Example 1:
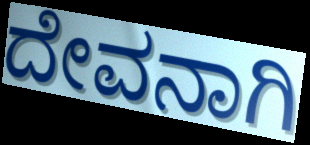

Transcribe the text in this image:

ದೇವನಾಗಿ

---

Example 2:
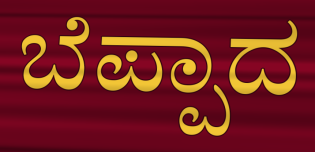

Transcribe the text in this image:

ಬೆಪ್ಪಾದ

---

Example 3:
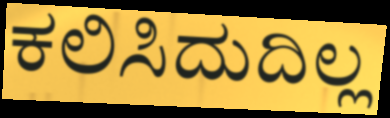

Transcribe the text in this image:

ಕಲಿಸಿದುದಿಲ್ಲ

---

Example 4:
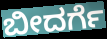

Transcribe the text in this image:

ಬೀದರ್ಗೆ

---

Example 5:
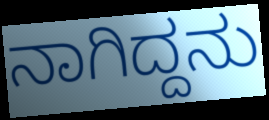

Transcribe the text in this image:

ನಾಗಿದ್ದನು